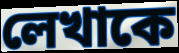
লেখাকে